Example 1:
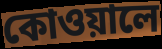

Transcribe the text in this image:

কোওয়ালে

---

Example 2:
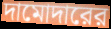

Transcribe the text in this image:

দামোদারের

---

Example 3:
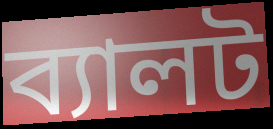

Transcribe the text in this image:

ব্যালট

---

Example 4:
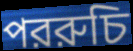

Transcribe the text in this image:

পররুচি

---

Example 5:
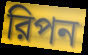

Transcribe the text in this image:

রিপন